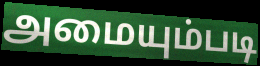
அமையும்படி